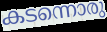
കടന്നൊരു